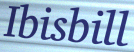
Ibisbill